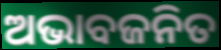
ଅଭାବଜନିତ